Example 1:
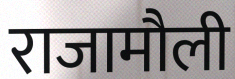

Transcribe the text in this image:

राजामौली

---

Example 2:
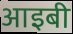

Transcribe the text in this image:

आइबी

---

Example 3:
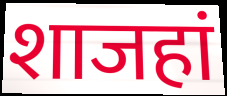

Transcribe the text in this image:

शाजहां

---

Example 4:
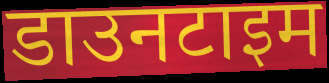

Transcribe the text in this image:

डाउनटाइम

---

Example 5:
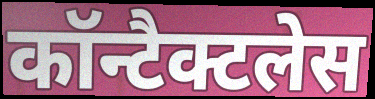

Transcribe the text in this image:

कॉन्टैक्टलेस